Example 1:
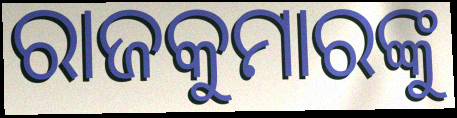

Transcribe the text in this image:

ରାଜକୁମାରଙ୍କୁ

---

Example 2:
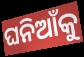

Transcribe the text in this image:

ଘନିଆଁକୁ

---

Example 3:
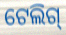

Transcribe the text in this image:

ଟେଲିଗ୍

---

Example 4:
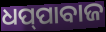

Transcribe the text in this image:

ଧପ୍‌ପାବାଜ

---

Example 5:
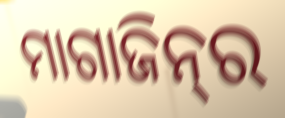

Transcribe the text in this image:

ମାଗାଜିନ୍‍ର